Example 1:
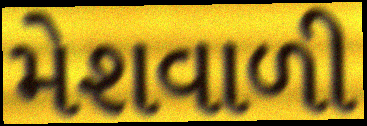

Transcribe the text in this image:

મેશવાળી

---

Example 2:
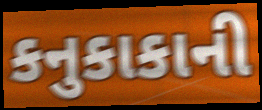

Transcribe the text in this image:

કનુકાકાની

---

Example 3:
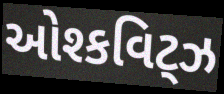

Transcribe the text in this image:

ઓશ્કવિટ્ઝ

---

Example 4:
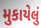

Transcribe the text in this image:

મુકાયેલું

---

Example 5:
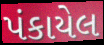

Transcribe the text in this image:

પંકાયેલ